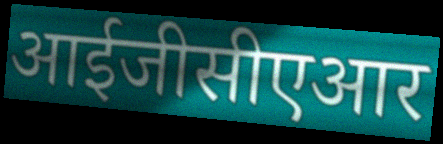
आईजीसीएआर